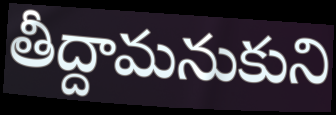
తీద్దామనుకుని